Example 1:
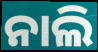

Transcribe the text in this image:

ନାଲି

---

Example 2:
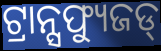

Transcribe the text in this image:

ଟ୍ରାନ୍ସଫ୍ୟୁଜଡ୍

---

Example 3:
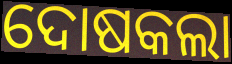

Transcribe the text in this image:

ଦୋଷକଲା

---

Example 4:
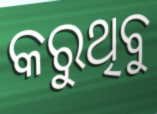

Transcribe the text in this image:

କରୁଥିବୁ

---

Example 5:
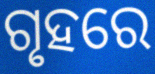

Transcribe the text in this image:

ଗୃହରେ